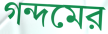
গন্দমের